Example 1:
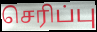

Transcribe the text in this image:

செரிப்பு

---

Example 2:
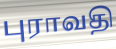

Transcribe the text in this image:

புராவதி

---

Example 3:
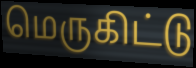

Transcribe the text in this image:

மெருகிட்டு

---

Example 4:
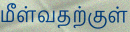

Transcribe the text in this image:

மீள்வதற்குள்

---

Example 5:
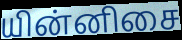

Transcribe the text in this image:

யின்னிசை